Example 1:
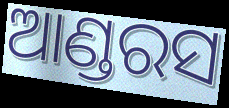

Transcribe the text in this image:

ଆଣ୍ଡରସ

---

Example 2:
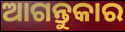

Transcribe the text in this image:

ଆଗନ୍ତୁକାର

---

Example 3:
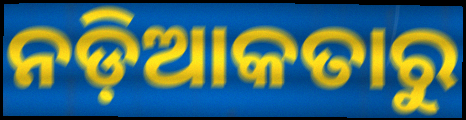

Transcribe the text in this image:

ନଡ଼ିଆକତାରୁ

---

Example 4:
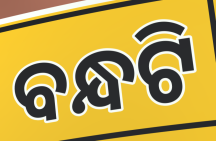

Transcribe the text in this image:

ବନ୍ଧଟି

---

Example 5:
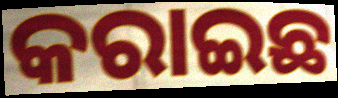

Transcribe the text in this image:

କରାଇଛ